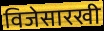
विजेसारखी